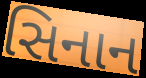
સિનાન